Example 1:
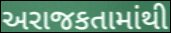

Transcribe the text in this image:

અરાજકતામાંથી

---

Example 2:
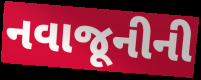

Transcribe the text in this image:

નવાજૂનીની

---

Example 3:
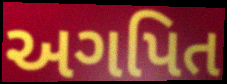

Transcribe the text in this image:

અગપિત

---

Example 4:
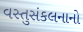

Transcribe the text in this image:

વસ્તુસંકલનાનો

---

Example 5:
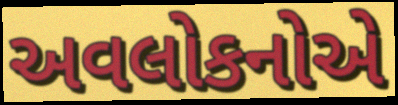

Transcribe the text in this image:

અવલોકનોએ